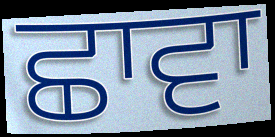
ਛਾਵਾ